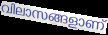
വിലാസങ്ങളാണ്